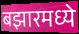
बझारमध्ये